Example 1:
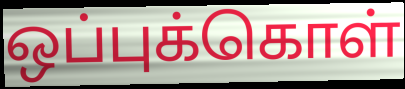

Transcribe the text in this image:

ஒப்புக்கொள்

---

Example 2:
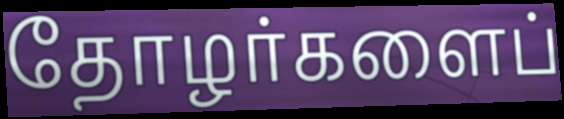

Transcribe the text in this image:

தோழர்களைப்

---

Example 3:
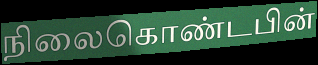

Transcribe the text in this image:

நிலைகொண்டபின்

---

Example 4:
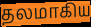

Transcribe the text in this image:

தலமாகிய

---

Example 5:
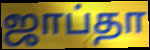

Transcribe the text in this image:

ஜாப்தா